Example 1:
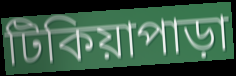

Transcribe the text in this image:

টিকিয়াপাড়া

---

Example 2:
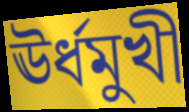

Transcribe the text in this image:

ঊর্ধমুখী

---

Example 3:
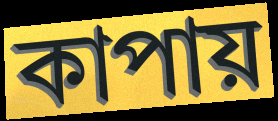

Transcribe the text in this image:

কাপায়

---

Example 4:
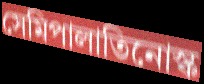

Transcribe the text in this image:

সেমিপালাতিনোস্ক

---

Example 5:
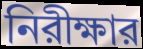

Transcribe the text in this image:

নিরীক্ষার